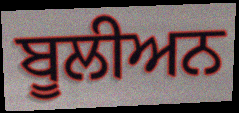
ਬੂਲੀਅਨ